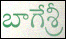
బాగేశ్రీ